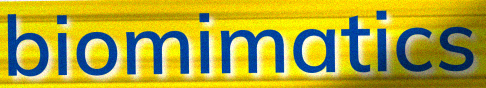
biomimatics